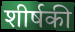
शीर्षकी